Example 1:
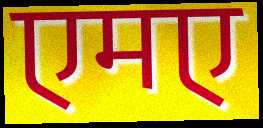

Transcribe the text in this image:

एमए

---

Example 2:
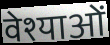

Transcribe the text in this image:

वेश्याओं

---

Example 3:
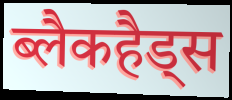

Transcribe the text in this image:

ब्लैकहैड्स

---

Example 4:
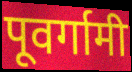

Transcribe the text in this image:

पूवर्गामी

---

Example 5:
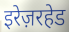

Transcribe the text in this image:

इरेज़रहेड